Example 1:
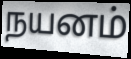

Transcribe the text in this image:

நயனம்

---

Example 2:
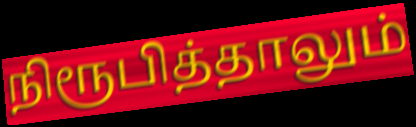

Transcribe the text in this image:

நிரூபித்தாலும்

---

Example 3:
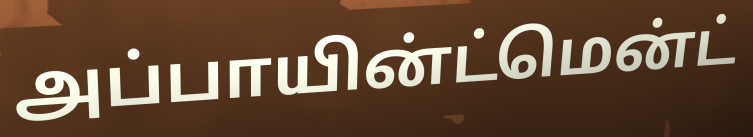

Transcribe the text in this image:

அப்பாயின்ட்மென்ட்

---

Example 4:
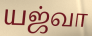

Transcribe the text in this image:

யஜ்வா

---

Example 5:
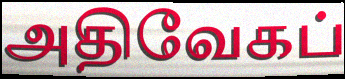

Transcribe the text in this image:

அதிவேகப்